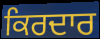
ਕਿਰਦਾਰ